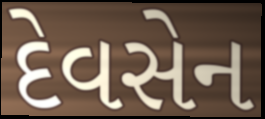
દેવસેન